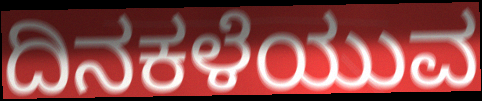
ದಿನಕಳೆಯುವ